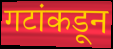
गटांकडून